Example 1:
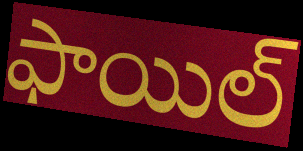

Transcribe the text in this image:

ఫాయిల్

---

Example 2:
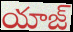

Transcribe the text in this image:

యాజ్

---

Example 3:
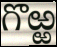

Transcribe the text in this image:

గొఱ్ఱ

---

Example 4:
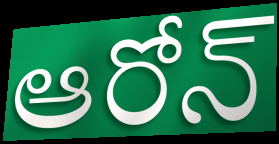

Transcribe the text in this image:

ఆరోన్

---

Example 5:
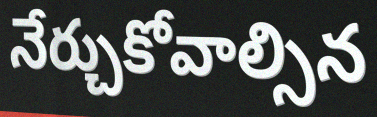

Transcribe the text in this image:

నేర్చుకోవాల్సిన